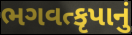
ભગવત્કૃપાનું